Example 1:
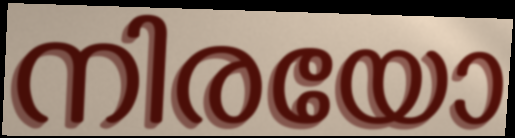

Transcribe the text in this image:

നിരയോ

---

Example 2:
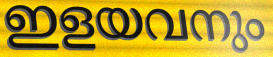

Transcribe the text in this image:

ഇളയവനും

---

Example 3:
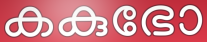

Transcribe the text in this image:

കകുഭോ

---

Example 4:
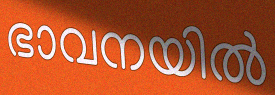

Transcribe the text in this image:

ഭാവനയിൽ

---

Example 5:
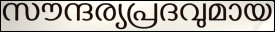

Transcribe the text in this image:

സൗന്ദര്യപ്രദവുമായ